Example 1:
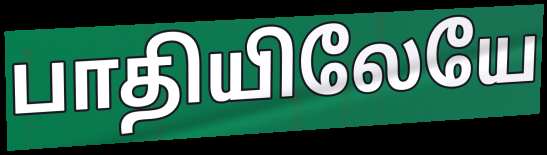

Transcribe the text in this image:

பாதியிலேயே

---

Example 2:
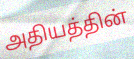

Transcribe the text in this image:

அதியத்தின்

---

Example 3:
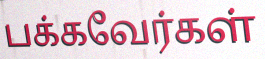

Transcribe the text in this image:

பக்கவேர்கள்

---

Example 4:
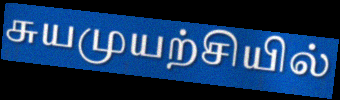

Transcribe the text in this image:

சுயமுயற்சியில்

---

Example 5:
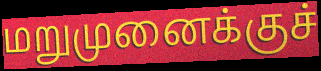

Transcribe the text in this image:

மறுமுனைக்குச்